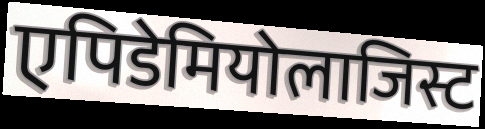
एपिडेमियोलाजिस्ट